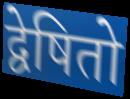
द्वेषितो